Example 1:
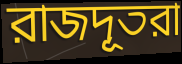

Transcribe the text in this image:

রাজদূতরা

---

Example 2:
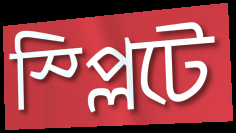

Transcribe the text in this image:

স্প্লিটে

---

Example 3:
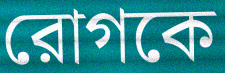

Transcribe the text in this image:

রোগকে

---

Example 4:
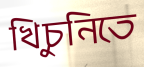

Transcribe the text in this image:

খিচুনিতে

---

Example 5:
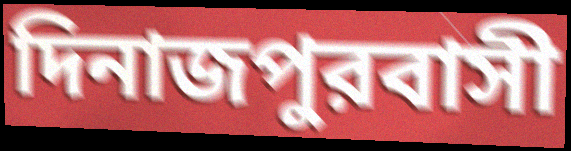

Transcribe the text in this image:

দিনাজপুরবাসী